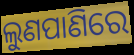
ଲୁଣପାଣିରେ